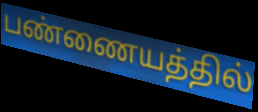
பண்ணையத்தில்